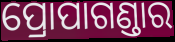
ପ୍ରୋପାଗଣ୍ଡାର